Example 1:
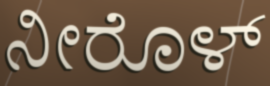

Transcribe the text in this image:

ನೀರೊಳ್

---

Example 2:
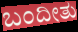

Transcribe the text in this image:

ಬಂದೀತು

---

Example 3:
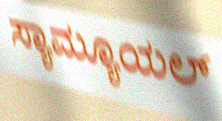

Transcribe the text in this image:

ಸ್ಯಾಮ್ಯೂಯಲ್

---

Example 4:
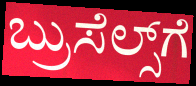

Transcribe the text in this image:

ಬ್ರುಸೆಲ್ಸ್‌ಗೆ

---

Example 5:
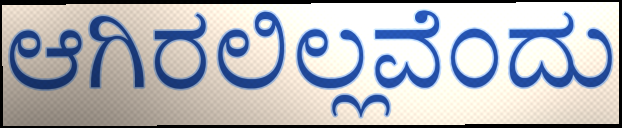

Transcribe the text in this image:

ಆಗಿರಲಿಲ್ಲವೆಂದು